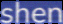
shen